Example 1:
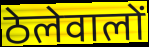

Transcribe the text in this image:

ठेलेवालों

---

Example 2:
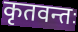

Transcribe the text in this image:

कृतवन्तः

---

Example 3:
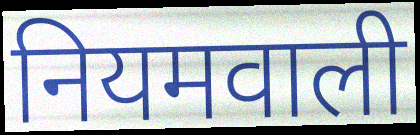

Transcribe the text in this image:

नियमवाली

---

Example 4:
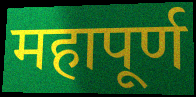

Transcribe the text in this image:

महापूर्ण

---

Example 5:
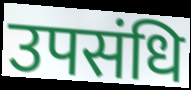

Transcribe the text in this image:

उपसंधि